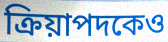
ক্রিয়াপদকেও